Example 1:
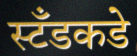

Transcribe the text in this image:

स्टॅंडकडे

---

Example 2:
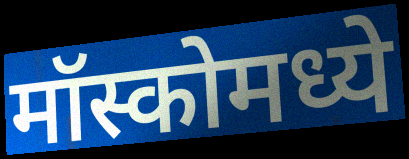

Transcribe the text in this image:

मॉस्कोमध्ये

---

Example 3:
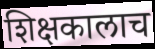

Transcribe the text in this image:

शिक्षकालाच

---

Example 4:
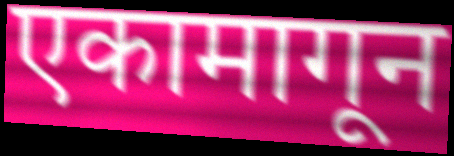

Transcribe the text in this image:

एकामागून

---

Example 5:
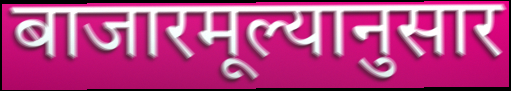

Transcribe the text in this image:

बाजारमूल्यानुसार